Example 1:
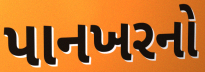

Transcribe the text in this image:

પાનખરનો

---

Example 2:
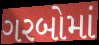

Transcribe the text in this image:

ગરબોમાં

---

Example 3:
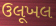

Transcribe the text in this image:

ઉલૂખલ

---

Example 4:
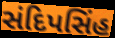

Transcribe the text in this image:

સંદિપસિંહ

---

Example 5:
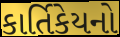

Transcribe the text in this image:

કાર્તિકેયનો